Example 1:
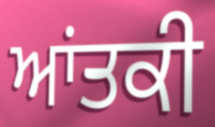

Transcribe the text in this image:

ਆਂਤਕੀ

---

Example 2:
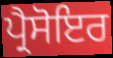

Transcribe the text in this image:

ਪ੍ਰੈਸੋਇਰ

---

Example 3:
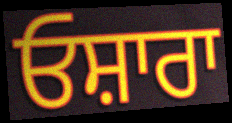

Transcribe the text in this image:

ਓਸ਼ਾਰਾ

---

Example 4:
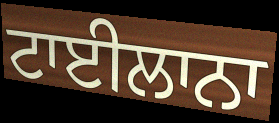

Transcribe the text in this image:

ਟਾਈਲਾਨਾ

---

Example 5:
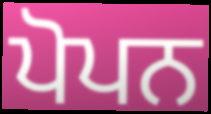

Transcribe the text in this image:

ਪੋਪਨ